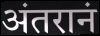
अंतरानं